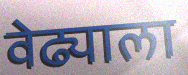
वेढ्याला